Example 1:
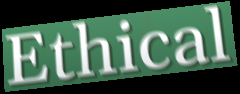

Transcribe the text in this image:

Ethical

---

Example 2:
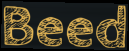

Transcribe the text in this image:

Beed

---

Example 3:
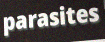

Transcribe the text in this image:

parasites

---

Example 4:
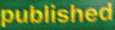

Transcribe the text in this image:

published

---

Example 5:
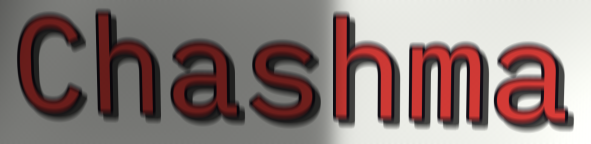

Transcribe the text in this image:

Chashma